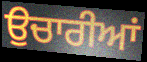
ਉਚਾਰੀਆਂ